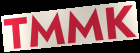
TMMK